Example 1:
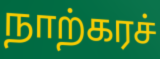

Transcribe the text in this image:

நாற்கரச்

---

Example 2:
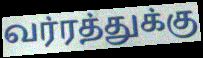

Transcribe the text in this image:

வர்ரத்துக்கு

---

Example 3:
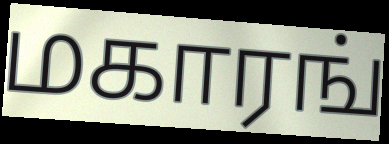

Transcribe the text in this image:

மகாரங்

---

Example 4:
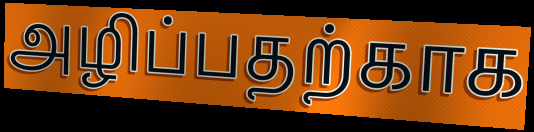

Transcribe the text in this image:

அழிப்பதற்காக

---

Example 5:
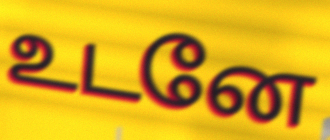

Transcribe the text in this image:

உடனே